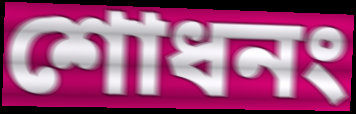
শোধনং